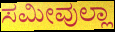
ಸಮೀವುಲ್ಲಾ